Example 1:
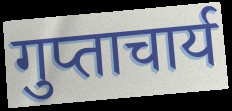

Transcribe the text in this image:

गुप्ताचार्य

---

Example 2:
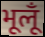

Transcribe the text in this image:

भूलूँ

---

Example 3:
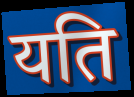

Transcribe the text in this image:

यति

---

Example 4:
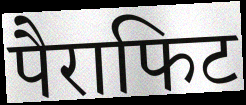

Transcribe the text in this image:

पैराफिट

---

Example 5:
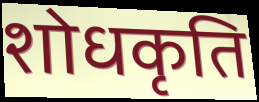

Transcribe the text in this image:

शोधकृति